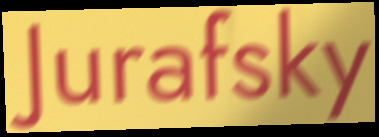
Jurafsky